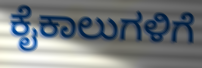
ಕೈಕಾಲುಗಳಿಗೆ